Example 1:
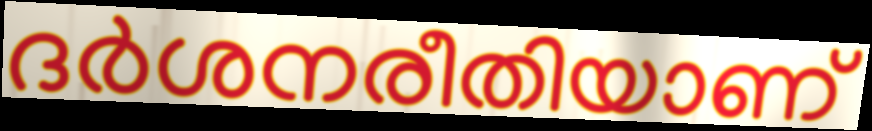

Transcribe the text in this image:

ദർശനരീതിയാണ്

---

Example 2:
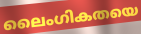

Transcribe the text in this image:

ലൈംഗികതയെ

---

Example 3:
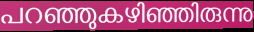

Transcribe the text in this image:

പറഞ്ഞുകഴിഞ്ഞിരുന്നു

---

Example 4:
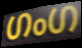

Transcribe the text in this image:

ഗംഗ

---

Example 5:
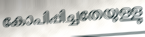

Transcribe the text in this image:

കോപിപ്പിച്ചതേയുള്ളു